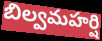
బిల్వమహర్షి